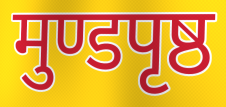
मुण्डपृष्ठ